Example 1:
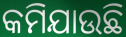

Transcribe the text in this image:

କମିଯାଉଛି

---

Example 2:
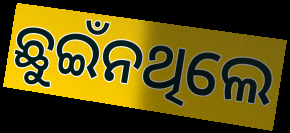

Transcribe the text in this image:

ଛୁଇଁନଥିଲେ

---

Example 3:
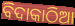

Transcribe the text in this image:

ବିଦାକାଠିଆ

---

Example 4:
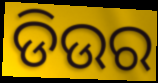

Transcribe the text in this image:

ଡିଉର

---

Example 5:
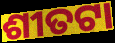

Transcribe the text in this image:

ଶୀତଟା